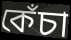
কেঁচা